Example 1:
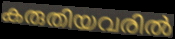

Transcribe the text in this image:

കരുതിയവരിൽ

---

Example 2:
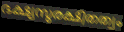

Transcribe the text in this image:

ഭക്ഷ്യസുരക്ഷിതത്വം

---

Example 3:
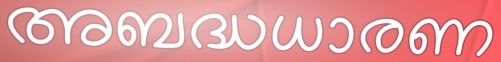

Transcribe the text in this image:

അബദ്ധധാരണ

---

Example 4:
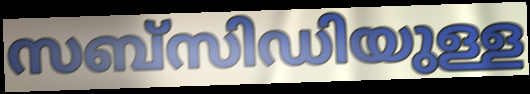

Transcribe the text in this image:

സബ്സിഡിയുള്ള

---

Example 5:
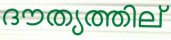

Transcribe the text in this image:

ദൗത്യത്തില്